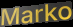
Marko